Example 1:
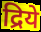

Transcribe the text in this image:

द्रिये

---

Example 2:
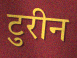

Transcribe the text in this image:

टुरीन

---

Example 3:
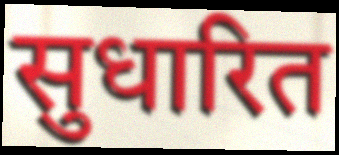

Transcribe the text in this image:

सुधारित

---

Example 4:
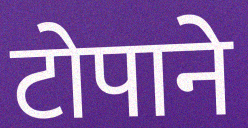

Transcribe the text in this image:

टोपाने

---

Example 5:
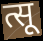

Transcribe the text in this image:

त्सू